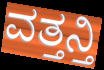
ವತ್ತನ್ತಿ